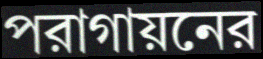
পরাগায়নের